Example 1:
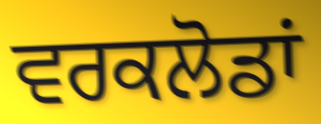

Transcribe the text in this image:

ਵਰਕਲੋਡਾਂ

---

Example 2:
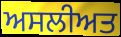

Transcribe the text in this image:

ਅਸਲੀਅਤ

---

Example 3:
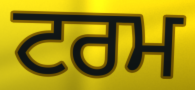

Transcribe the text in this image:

ਟਰਮ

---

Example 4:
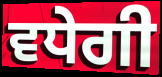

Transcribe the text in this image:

ਵਧੇਗੀ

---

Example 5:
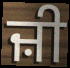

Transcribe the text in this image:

ਜ਼ੀ